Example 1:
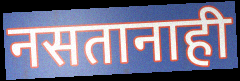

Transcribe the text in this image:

नसतानाही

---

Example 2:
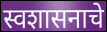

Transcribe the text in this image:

स्वशासनाचे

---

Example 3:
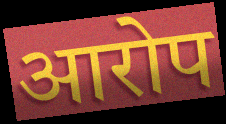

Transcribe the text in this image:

आरोप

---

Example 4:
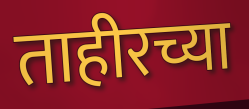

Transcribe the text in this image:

ताहीरच्या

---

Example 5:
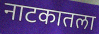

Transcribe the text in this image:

नाटकातला